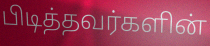
பிடித்தவர்களின்